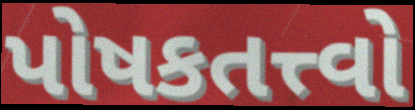
પોષકતત્ત્વો